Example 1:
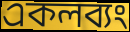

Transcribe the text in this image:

একলব্যং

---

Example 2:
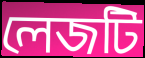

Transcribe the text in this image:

লেজটি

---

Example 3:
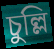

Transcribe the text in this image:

চুল্লি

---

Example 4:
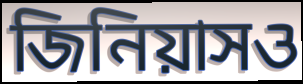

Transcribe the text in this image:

জিনিয়াসও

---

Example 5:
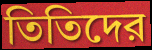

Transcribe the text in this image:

তিতিদের